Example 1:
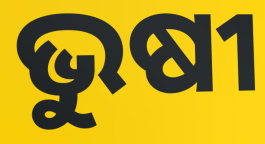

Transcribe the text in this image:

ଭୁଷୀ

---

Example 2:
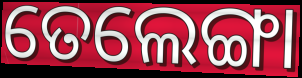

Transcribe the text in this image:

ତେଲେଙ୍ଗା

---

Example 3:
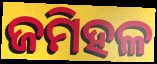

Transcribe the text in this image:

ଜମିହଳ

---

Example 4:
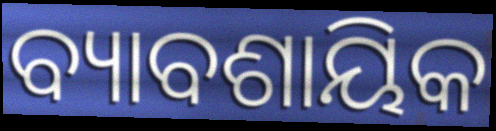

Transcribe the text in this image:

ବ୍ୟାବଶାୟିକ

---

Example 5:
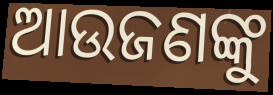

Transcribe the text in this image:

ଆଉଜଣଙ୍କୁ